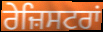
ਰੇਜ਼ਿਸਟਰਾਂ